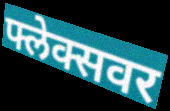
फ्लेक्सवर